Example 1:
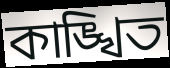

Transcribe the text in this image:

কাঙ্খিত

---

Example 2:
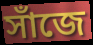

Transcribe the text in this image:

সাঁজে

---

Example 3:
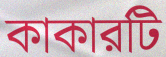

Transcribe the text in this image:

কাকারটি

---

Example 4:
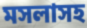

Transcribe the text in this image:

মসলাসহ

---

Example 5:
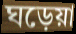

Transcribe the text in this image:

ঘড়েয়া